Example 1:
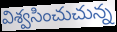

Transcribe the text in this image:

విశ్వసించుచున్న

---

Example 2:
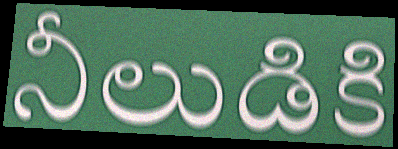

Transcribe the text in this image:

నీలుడికి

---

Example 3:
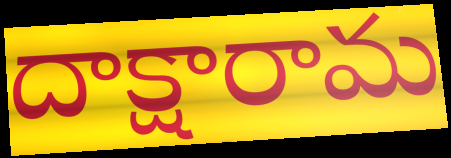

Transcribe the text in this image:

దాక్షారామ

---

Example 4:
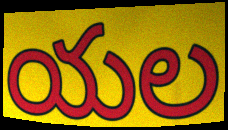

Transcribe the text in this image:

యల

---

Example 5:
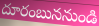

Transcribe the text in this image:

దూరంబుననుండి